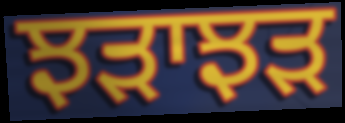
ਝੜਾਝੜ